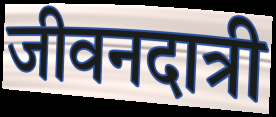
जीवनदात्री